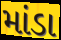
માંડા